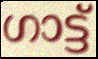
ഗാട്ട്